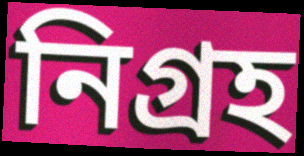
নিগ্রহ